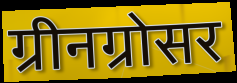
ग्रीनग्रोसर